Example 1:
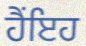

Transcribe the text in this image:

ਹੈਂਇਹ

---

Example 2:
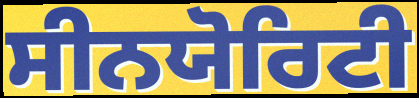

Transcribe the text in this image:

ਸੀਨਯੋਰਿਟੀ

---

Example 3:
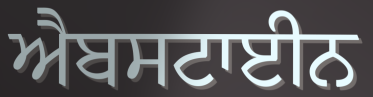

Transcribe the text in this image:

ਐਬਸਟਾਈਨ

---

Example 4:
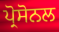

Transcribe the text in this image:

ਪ੍ਰੋਸੋਨਲ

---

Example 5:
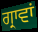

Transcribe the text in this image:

ਗ੍ਰਾਵਾਂ